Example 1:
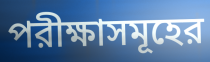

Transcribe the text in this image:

পরীক্ষাসমূহের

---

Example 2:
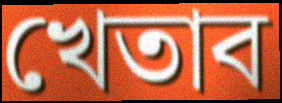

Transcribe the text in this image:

খেতাব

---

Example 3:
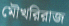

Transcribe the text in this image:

মৌখরিরাজ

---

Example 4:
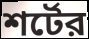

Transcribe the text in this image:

শর্টের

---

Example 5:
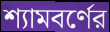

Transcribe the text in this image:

শ্যামবর্ণের